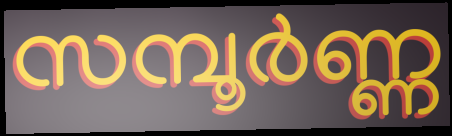
സമ്പൂർണ്ണ